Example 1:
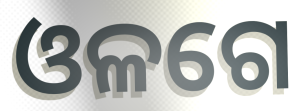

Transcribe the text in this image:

ଓଳଗେ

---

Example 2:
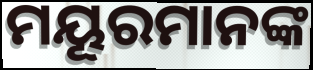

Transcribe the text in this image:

ମୟୂରମାନଙ୍କ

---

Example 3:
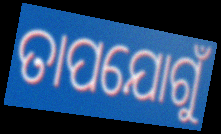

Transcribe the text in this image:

ତାପଯୋଗୁଁ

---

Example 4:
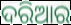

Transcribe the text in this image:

ଦରିଆର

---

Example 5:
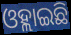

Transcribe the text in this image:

ଓହ୍ଲାଇଛି